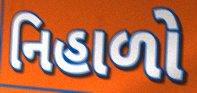
નિહાળો